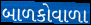
બાળકોવાળા